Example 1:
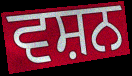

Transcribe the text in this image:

ਵਸ਼ਨ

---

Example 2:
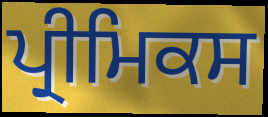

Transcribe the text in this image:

ਪ੍ਰੀਮਿਕਸ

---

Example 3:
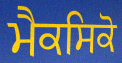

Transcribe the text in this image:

ਮੈਕਸਿਕੋ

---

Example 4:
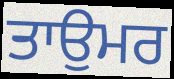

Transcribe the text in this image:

ਤਾਉਮਰ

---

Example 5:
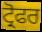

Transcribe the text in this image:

ਟ੍ਰੋਫਰ